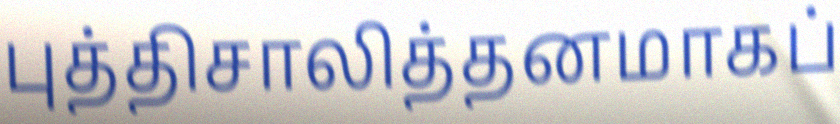
புத்திசாலித்தனமாகப்